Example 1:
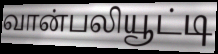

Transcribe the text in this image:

வான்பலியூட்டி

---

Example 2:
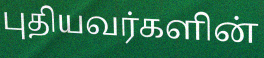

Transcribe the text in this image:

புதியவர்களின்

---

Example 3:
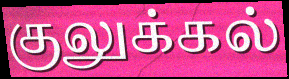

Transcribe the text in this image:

குலுக்கல்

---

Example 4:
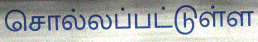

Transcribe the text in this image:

சொல்லப்பட்டுள்ள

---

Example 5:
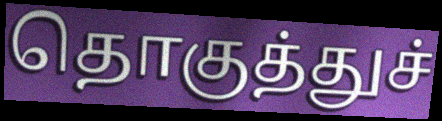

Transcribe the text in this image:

தொகுத்துச்